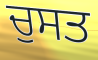
ਚੁਸਤ